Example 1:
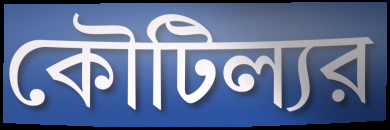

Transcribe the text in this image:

কৌটিল্যর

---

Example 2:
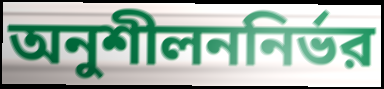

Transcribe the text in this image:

অনুশীলননির্ভর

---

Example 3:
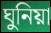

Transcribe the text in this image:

ঘুনিয়া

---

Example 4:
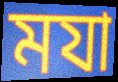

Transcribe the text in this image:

মযা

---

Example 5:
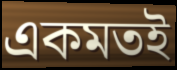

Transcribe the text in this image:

একমতই